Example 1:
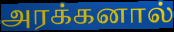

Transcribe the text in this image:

அரக்கனால்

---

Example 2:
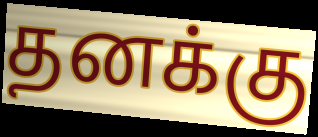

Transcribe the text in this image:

தனக்கு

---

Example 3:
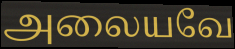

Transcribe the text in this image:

அலையவே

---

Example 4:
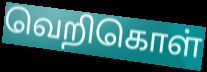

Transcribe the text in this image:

வெறிகொள்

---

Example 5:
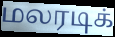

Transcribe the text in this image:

மலரடிக்